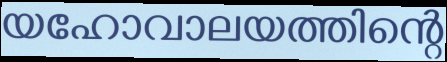
യഹോവാലയത്തിന്റെ